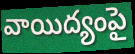
వాయిద్యంపై